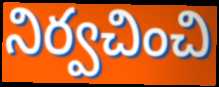
నిర్వచించి